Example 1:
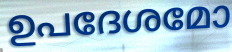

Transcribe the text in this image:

ഉപദേശമോ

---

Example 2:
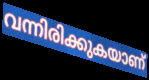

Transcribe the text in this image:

വന്നിരിക്കുകയാണ്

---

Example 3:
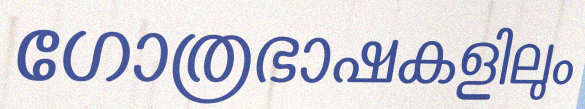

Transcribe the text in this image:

ഗോത്രഭാഷകളിലും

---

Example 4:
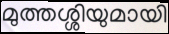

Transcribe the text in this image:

മുത്തശ്ശിയുമായി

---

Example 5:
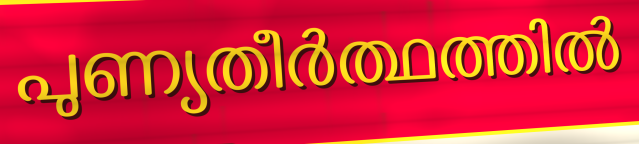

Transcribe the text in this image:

പുണ്യതീർത്ഥത്തിൽ